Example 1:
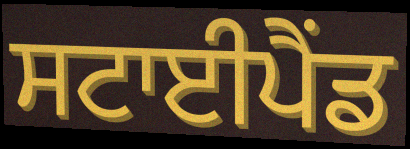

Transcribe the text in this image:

ਸਟਾਈਪੈਂਡ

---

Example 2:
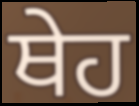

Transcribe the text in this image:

ਥੇਹ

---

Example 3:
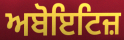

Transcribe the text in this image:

ਅਬੋਇਟਿਜ਼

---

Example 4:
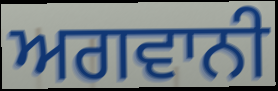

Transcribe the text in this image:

ਅਗਵਾਨੀ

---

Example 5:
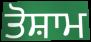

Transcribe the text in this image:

ਤੋਸ਼ਾਮ